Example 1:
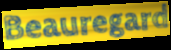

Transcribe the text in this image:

Beauregard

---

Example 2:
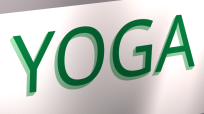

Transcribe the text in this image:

YOGA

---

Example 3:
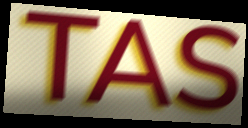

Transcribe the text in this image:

TAS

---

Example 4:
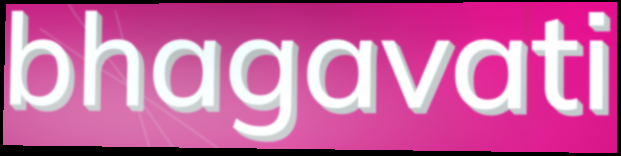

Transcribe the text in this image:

bhagavati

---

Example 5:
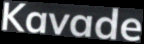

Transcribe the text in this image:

Kavade